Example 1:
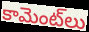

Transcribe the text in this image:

కామెంట్‌లు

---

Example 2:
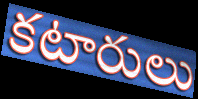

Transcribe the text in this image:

కటారులు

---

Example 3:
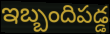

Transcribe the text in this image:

ఇబ్బందిపడ్డ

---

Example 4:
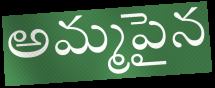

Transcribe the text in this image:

అమ్మపైన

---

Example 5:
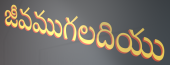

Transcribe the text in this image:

జీవముగలదియు